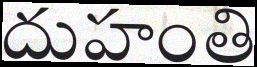
దుహంతి